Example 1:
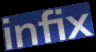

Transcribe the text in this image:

infix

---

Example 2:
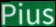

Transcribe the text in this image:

Pius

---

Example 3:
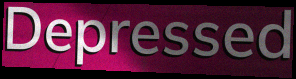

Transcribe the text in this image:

Depressed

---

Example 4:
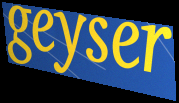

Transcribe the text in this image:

geyser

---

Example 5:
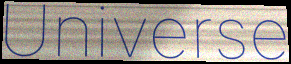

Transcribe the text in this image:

Universe